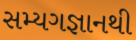
સમ્યગજ્ઞાનથી